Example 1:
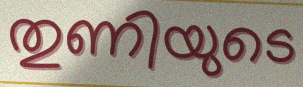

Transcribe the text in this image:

തുണിയുടെ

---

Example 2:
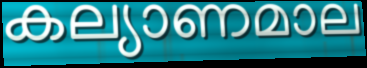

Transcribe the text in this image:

കല്യാണമാല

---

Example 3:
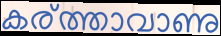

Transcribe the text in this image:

കര്ത്താവാണു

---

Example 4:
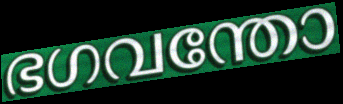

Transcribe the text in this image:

ഭഗവന്തോ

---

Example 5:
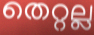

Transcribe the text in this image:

തെറ്റല്ല